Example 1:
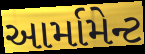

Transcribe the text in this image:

આર્મામેન્ટ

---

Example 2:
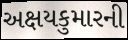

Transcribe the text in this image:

અક્ષયકુમારની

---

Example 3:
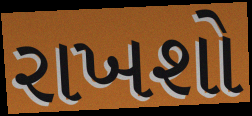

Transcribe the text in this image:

રાખશો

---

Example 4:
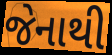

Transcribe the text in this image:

જેનાથી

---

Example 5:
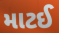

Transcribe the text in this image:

માટઈ